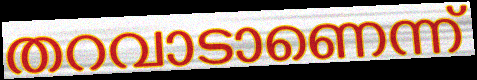
തറവാടാണെന്ന്